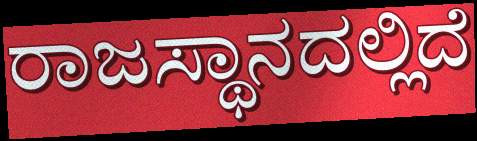
ರಾಜಸ್ಥಾನದಲ್ಲಿದೆ